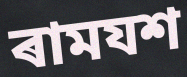
ৰামযশ